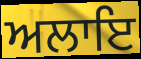
ਅਲਾਇ